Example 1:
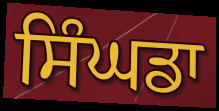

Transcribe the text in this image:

ਸਿੰਘਡਾ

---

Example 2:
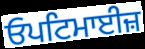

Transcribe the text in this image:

ਓਪਟਿਮਾਈਜ਼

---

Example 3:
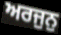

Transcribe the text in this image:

ਅਰਜੁਨੁ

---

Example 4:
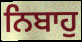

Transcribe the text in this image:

ਨਿਬਾਹੁ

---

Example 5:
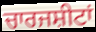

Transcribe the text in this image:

ਚਾਰਜਸ਼ੀਟਾਂ